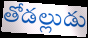
తోడల్లుడు